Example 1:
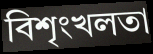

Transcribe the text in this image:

বিশৃংখলতা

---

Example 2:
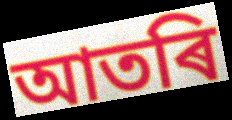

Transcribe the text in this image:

আতৰি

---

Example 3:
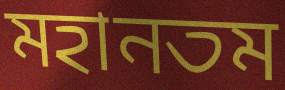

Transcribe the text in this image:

মহানতম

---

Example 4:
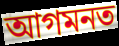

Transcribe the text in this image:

আগমনত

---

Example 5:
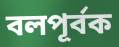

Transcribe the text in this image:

বলপূৰ্বক